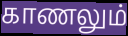
காணலும்